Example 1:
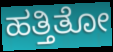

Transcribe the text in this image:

ಹತ್ತಿತೋ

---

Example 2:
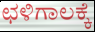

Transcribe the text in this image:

ಛಳಿಗಾಲಕ್ಕೆ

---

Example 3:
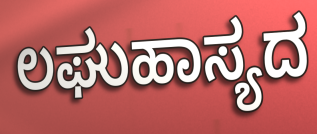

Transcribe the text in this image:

ಲಘುಹಾಸ್ಯದ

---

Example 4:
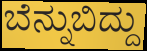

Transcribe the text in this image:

ಬೆನ್ನುಬಿದ್ದು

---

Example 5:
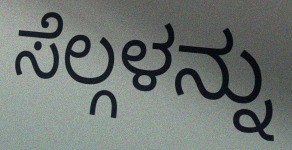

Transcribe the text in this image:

ಸೆಲ್ಗಳನ್ನು